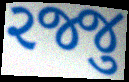
રજ્જુ